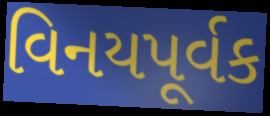
વિનયપૂર્વક